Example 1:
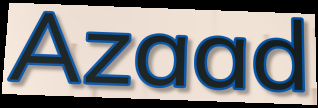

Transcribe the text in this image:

Azaad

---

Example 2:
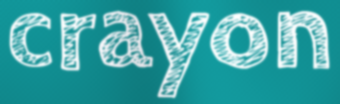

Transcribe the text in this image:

crayon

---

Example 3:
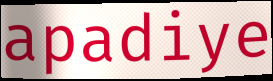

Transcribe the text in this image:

apadiye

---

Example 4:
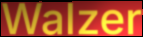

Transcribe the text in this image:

Walzer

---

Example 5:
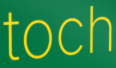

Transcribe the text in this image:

toch